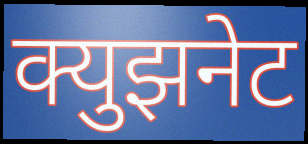
क्युझनेट